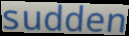
sudden